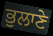
ਭੁਲਾਣੇ